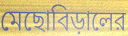
মেছোবিড়ালের